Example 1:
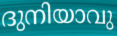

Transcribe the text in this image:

ദുനിയാവു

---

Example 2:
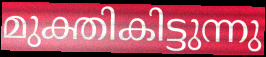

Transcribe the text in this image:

മുക്തികിട്ടുന്നു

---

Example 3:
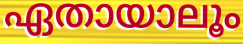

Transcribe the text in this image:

ഏതായാലൂം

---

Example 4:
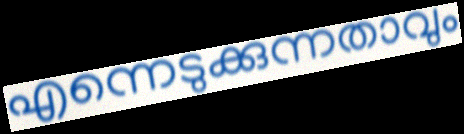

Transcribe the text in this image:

എന്നെടുക്കുന്നതാവും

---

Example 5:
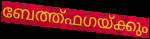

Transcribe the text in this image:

ബേത്ത്ഫഗയ്ക്കും